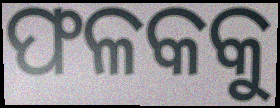
ଫଳକକୁ